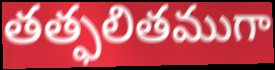
తత్ఫలితముగా